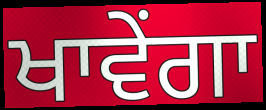
ਖਾਵੇਂਗਾ